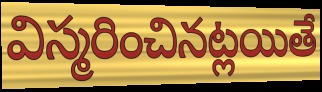
విస్మరించినట్లయితే